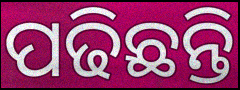
ପଢିଛନ୍ତି